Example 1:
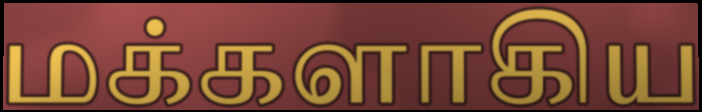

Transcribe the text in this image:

மக்களாகிய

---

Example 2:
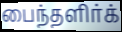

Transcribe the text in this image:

பைந்தளிர்க்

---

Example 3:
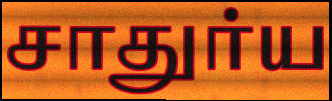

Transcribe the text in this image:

சாதுர்ய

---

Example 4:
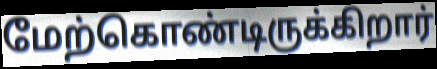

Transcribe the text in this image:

மேற்கொண்டிருக்கிறார்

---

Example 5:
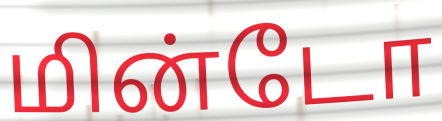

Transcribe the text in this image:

மின்டோ